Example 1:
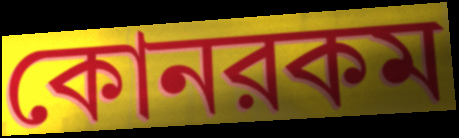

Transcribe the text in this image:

কোনরকম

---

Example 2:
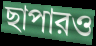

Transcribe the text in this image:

ছাপারও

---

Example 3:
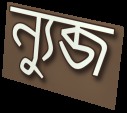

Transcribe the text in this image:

ন্যুব্জ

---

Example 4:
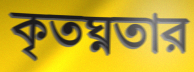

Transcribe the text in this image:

কৃতঘ্নতার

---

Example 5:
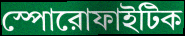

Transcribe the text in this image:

স্পোরোফাইটিক